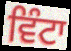
ਵਿੰਟਾ